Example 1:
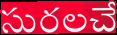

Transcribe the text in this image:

సురలచే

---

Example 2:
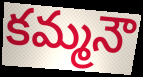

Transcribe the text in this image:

కమ్మనౌ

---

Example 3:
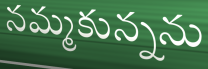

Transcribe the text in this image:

నమ్మకున్నను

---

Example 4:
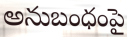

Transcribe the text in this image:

అనుబంధంపై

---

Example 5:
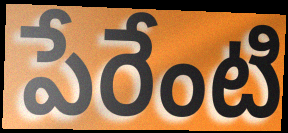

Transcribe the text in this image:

పేరేంటి